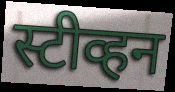
स्टीव्हन